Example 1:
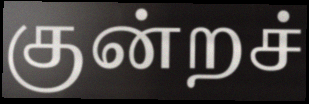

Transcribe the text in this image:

குன்றச்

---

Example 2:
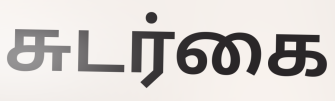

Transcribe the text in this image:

சுடர்கை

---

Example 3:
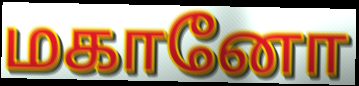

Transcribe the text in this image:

மகானோ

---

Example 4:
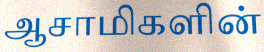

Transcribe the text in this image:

ஆசாமிகளின்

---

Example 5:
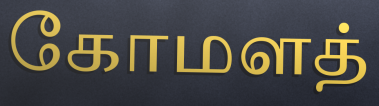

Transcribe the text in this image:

கோமளத்